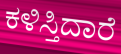
ಕಳಿಸ್ತಿದಾರೆ